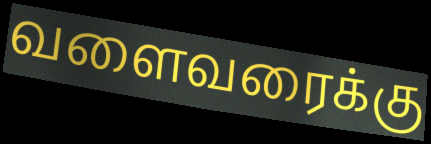
வளைவரைக்கு